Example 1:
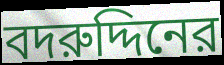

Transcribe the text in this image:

বদরুদ্দিনের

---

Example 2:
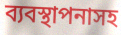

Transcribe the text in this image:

ব্যবস্থাপনাসহ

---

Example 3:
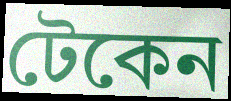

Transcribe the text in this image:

টেকেন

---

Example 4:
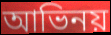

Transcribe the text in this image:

আভিনয়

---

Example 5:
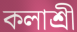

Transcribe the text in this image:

কলাশ্রী